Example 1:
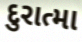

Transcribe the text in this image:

દુરાત્મા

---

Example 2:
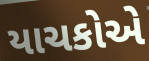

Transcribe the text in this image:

યાચકોએ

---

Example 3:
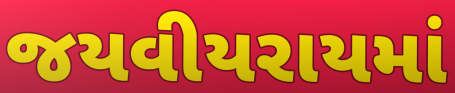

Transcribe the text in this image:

જયવીયરાયમાં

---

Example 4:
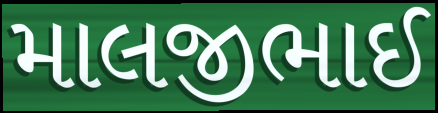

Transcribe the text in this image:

માલજીભાઈ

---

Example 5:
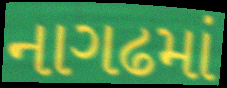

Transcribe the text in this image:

નાગઢમાં